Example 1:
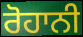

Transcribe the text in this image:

ਰੋਹਾਨੀ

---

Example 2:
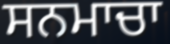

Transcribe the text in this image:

ਸਨਮਾਚਾ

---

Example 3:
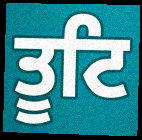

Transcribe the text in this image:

ਤੂਟਿ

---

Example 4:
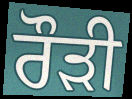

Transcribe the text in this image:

ਰੌੜੀ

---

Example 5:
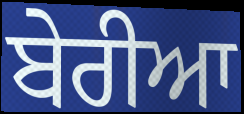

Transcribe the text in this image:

ਬੇਰੀਆ